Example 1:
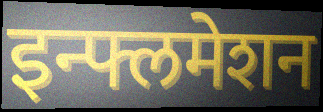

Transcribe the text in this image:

इन्फ्लमेशन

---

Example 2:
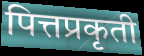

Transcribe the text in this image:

पित्तप्रकृती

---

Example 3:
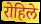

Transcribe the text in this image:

रोहिले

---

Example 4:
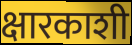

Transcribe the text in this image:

क्षारकाशी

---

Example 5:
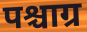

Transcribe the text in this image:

पश्चाग्र